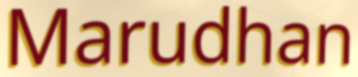
Marudhan